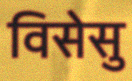
विसेसु